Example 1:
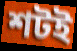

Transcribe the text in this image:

শটই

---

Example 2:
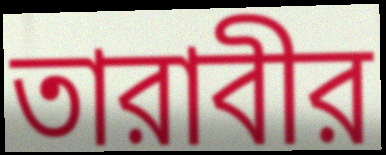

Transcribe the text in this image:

তারাবীর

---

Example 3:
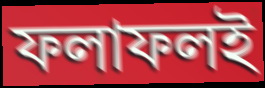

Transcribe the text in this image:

ফলাফলই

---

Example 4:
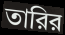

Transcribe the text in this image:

তারির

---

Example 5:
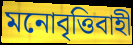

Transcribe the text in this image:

মনোবৃত্তিবাহী